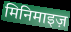
मिनिमाइज़